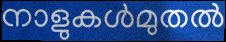
നാളുകൾമുതൽ